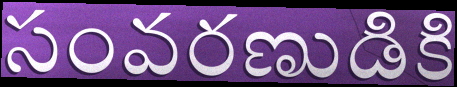
సంవరణుడికి